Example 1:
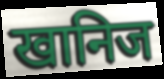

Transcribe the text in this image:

खानिज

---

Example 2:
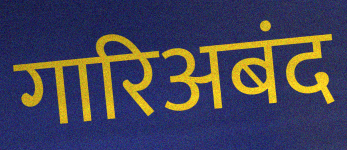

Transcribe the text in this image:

गारिअबंद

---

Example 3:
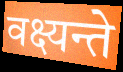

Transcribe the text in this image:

वक्ष्यन्ते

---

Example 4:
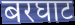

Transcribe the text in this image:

बरघाट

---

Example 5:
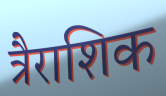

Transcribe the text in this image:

त्रैराशिक